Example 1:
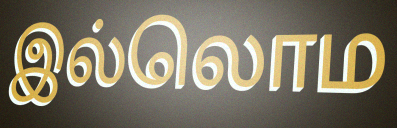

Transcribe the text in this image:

இல்லொம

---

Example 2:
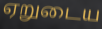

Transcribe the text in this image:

ஏறுடைய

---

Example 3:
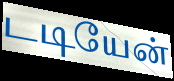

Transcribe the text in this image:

டடியேன்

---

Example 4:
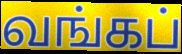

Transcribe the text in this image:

வங்கப்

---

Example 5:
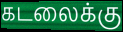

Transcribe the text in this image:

கடலைக்கு